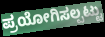
ಪ್ರಯೋಗಿಸಲ್ಪಟ್ಟು